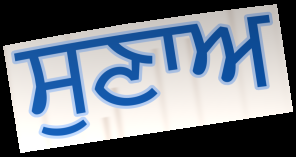
ਸੁਣਾਅ